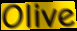
Olive